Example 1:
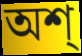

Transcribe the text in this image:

অশ্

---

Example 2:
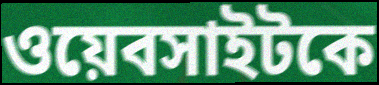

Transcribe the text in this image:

ওয়েবসাইটকে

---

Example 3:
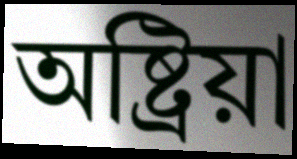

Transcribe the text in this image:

অষ্ট্রিয়া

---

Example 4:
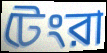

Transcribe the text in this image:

টেংরা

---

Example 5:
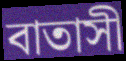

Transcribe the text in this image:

বাতাসী